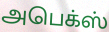
அபெக்ஸ்